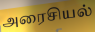
அரைசியல்